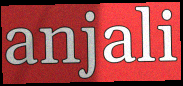
anjali